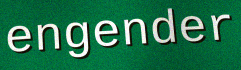
engender